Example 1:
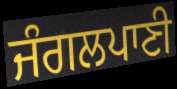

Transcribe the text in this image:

ਜੰਗਲਪਾਣੀ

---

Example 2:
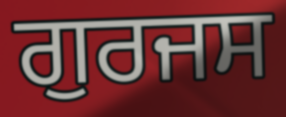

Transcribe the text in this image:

ਗੁਰਜਸ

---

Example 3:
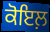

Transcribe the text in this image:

ਕੋਇਲ਼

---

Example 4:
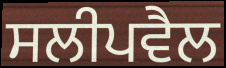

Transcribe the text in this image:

ਸਲੀਪਵੈਲ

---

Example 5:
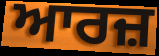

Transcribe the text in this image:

ਆਰਜ਼